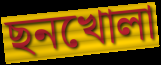
ছনখোলা